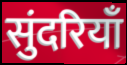
सुंदरियाँ